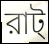
রাট্